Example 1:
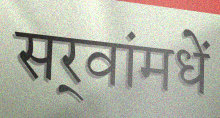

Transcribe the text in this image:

सर्वांमधें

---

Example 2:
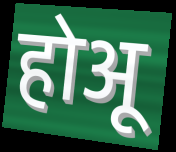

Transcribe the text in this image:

होअू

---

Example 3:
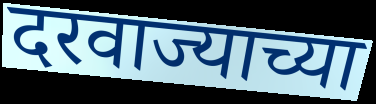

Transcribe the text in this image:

दरवाज्याच्या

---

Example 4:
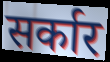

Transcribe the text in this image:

सर्कार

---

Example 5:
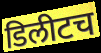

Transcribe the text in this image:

डिलीटच